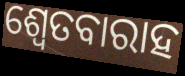
ଶ୍ଵେତବାରାହ